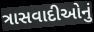
ત્રાસવાદીઓનું